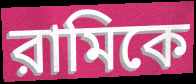
রামিকে